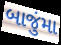
બાજુંમા